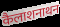
कैलाशनाथन